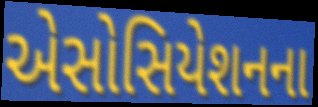
એસોસિયેશનના